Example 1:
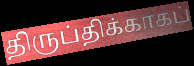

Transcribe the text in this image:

திருப்திக்காகப்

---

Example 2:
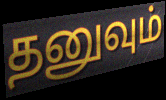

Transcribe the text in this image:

தனுவும்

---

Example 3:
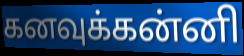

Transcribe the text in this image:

கனவுக்கன்னி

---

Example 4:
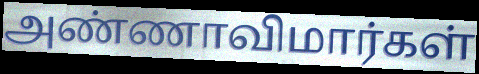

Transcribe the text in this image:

அண்ணாவிமார்கள்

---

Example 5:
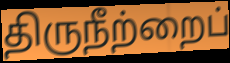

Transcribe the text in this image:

திருநீற்றைப்